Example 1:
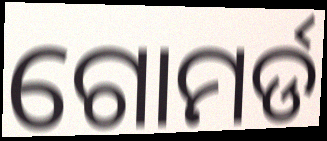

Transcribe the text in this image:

ଗୋମର୍ଡ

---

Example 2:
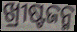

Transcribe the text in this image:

ଖ୍ରୀଷ୍ଟଜନ୍ମ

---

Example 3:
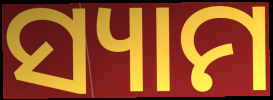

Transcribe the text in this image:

ସ୍ୟାମ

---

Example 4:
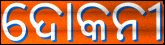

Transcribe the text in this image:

ଦୋକନୀ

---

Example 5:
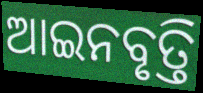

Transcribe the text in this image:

ଆଇନବୃତ୍ତି